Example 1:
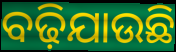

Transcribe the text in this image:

ବଢ଼ିଯାଉଛି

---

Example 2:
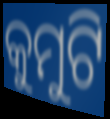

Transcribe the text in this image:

କୁମୁଟି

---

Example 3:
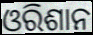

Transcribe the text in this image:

ଓରିଶାନ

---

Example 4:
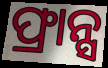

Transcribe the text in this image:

ଫ୍ରାନ୍ସ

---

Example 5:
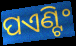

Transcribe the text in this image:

ପଏଣ୍ଟିଂ